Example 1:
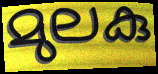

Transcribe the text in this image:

മുലകു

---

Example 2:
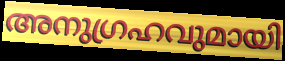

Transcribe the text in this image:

അനുഗ്രഹവുമായി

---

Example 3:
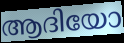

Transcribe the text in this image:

ആദിയോ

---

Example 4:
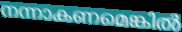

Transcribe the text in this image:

നന്നാകണമെങ്കിൽ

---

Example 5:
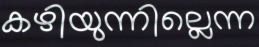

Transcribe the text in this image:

കഴിയുന്നില്ലെന്ന